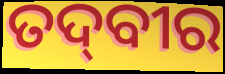
ତଦ୍‌ବୀର